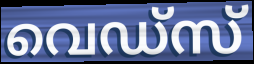
വെഡ്സ്